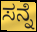
ಸನ್ನೆ